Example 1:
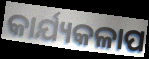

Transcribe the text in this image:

କାର୍ଯ୍ୟକଳାପ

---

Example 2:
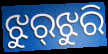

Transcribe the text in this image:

ଝୁର୍‌ଝୁରି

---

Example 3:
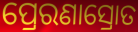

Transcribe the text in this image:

ପ୍ରେରଣାସ୍ରୋତ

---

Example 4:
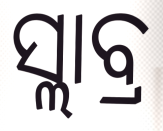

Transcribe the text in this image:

ସ୍ଲାବ୍ର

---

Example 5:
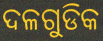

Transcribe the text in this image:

ଦଳଗୁଡିକ